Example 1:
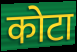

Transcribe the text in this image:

कोटा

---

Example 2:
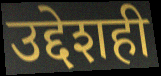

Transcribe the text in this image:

उद्देशही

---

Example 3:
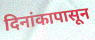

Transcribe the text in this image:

दिनांकापासून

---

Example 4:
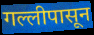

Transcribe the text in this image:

गल्लीपासून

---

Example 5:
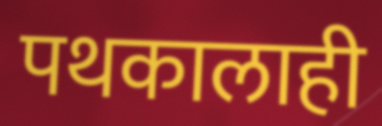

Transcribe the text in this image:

पथकालाही